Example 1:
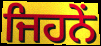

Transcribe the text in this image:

ਜਿਹਨੇਂ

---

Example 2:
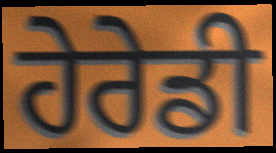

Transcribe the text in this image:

ਹੇਰੇਡੀ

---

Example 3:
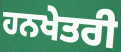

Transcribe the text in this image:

ਹਨਖੇਤਰੀ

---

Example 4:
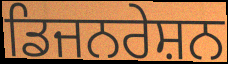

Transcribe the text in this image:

ਡਿਜਨਰੇਸ਼ਨ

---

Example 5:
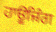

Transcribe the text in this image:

ਹਾਊਜ਼ਿੰਗ